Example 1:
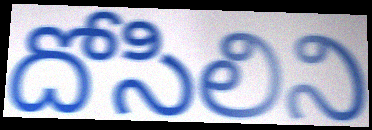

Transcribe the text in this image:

దోసిలిని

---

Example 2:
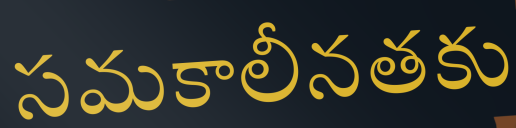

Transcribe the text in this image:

సమకాలీనతకు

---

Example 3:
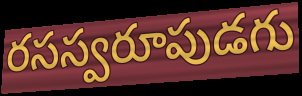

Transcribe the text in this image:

రసస్వరూపుడగు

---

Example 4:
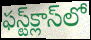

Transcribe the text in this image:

ఫస్ట్‌క్లాస్‌లో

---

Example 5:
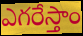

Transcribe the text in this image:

ఎగరేస్తాం